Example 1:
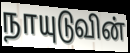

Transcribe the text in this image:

நாயுடுவின்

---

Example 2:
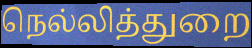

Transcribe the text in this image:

நெல்லித்துறை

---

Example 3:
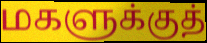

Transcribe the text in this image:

மகளுக்குத்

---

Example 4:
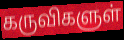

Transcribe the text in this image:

கருவிகளுள்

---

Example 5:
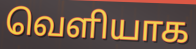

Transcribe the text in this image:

வெளியாக